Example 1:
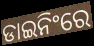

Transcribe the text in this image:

ଡାଇନିଂରେ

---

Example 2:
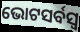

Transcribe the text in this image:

ଭୋଟସର୍ବସ୍ବ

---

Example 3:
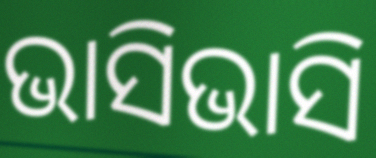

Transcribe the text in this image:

ଭାସିଭାସି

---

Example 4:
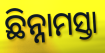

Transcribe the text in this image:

ଛିନ୍ନାମସ୍ତା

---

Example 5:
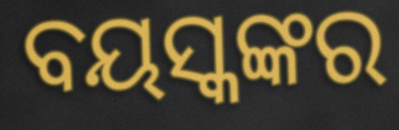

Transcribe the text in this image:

ବୟସ୍କଙ୍କର